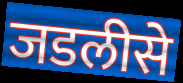
जडलीसे